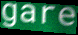
gare